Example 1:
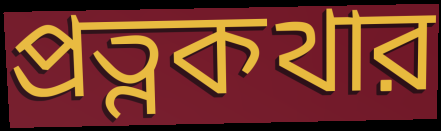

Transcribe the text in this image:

প্রত্নকথার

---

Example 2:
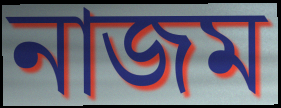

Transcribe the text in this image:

নাজম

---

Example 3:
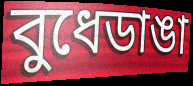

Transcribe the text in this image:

বুধেডাঙা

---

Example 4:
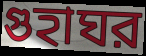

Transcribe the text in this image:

গুহাঘর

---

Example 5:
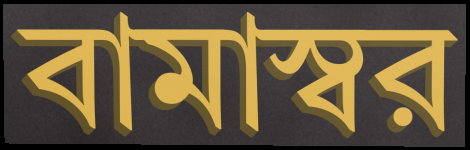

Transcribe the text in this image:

বামাস্বর